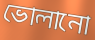
ভোলানো